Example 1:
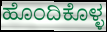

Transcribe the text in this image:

ಹೊಂದಿಕೊಳ್ಳ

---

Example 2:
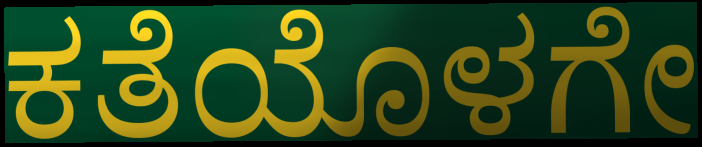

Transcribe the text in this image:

ಕತೆಯೊಳಗೇ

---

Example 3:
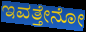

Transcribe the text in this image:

ಇವತ್ತೇನೋ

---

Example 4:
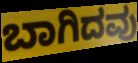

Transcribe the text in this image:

ಬಾಗಿದವು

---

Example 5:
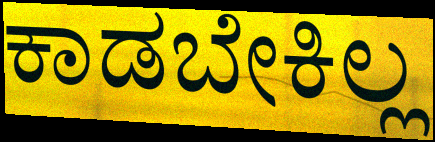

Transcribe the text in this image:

ಕಾಡಬೇಕಿಲ್ಲ